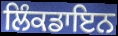
ਲਿੰਕਡਾਇਨ